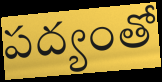
పద్యంతో